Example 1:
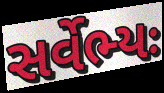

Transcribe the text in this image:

સર્વેભ્યઃ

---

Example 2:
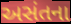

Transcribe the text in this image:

અસંતના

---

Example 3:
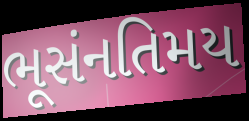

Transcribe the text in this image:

ભૂસંનતિમય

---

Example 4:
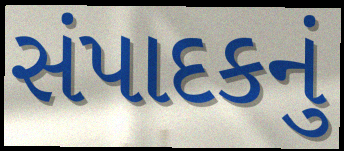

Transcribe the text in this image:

સંપાદકનું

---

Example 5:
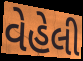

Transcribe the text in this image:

વેહેલી